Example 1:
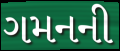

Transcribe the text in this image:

ગમનની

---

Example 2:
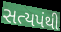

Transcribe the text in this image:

સત્યપંથી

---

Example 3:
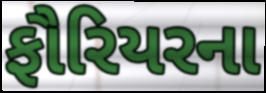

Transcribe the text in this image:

ફૌરિયરના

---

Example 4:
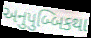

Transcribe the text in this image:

અનુપુબ્બિકથા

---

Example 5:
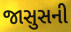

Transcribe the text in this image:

જાસુસની